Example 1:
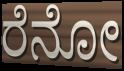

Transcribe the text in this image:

ರೆನೋ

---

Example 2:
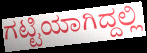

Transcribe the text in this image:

ಗಟ್ಟಿಯಾಗಿದ್ದಲ್ಲಿ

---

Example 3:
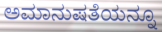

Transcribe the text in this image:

ಅಮಾನುಷತೆಯನ್ನೂ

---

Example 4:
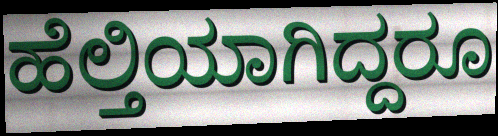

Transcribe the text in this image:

ಹೆಲ್ತಿಯಾಗಿದ್ದರೂ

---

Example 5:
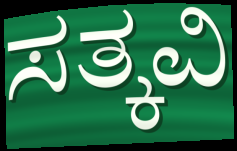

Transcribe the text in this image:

ಸತ್ಕವಿ